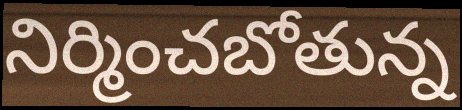
నిర్మించబోతున్న